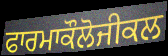
ਫਾਰਮਾਕੌਲੋਜੀਕਲ